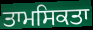
ਤਾਮਸਿਕਤਾ